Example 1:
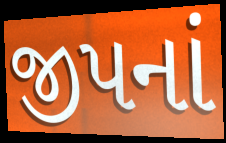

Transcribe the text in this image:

જીપનાં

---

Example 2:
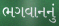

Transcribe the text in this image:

ભગવાનનું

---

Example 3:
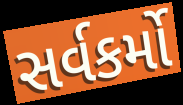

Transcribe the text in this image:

સર્વકર્મો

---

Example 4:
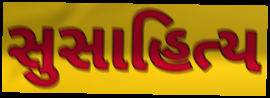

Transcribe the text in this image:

સુસાહિત્ય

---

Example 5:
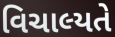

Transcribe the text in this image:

વિચાલ્યતે